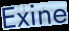
Exine